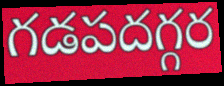
గడపదగ్గర